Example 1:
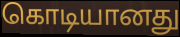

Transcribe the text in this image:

கொடியானது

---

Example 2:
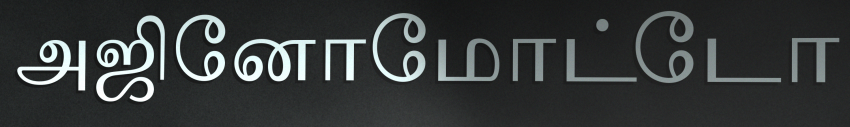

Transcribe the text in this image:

அஜினோமோட்டோ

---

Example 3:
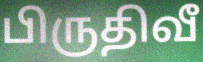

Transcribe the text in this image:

பிருதிவீ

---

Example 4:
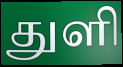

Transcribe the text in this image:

துளி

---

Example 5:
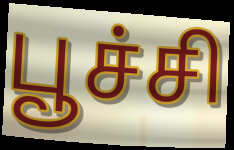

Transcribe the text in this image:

பூச்சி